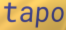
tapo